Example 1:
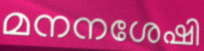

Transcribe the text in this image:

മനനശേഷി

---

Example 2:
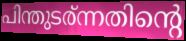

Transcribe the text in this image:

പിന്തുടര്ന്നതിന്റെ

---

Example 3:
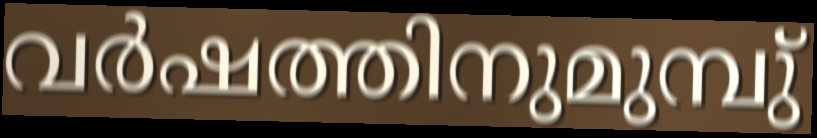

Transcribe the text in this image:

വർഷത്തിനുമുമ്പു്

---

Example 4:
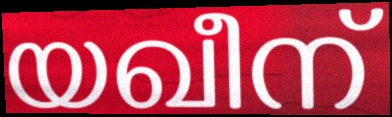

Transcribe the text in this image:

യഖീന്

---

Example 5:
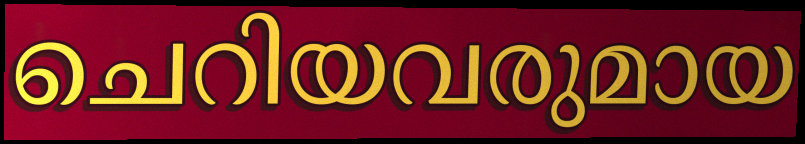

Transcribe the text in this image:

ചെറിയവരുമായ